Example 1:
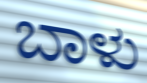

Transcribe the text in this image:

ಬಾಳು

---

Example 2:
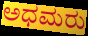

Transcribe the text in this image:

ಅಧಮರು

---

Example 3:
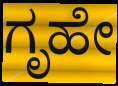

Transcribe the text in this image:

ಗೃಹೇ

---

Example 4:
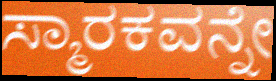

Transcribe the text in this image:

ಸ್ಮಾರಕವನ್ನೇ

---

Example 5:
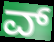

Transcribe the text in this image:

ವ್